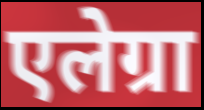
एलेग्रा